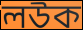
লউক